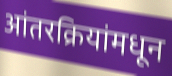
आंतरक्रियांमधून